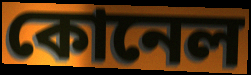
কোনেল